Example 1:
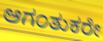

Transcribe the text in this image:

ಆಗಂತುಕರೇ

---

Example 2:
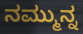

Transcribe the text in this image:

ನಮ್ಮುನ್ನ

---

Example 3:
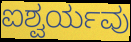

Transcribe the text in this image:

ಐಶ್ವರ್ಯವು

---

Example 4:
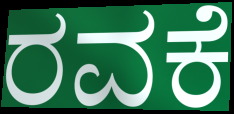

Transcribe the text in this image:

ರವಕೆ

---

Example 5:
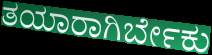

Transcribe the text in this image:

ತಯಾರಾಗಿರ್ಬೇಕು